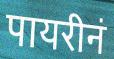
पायरीनं